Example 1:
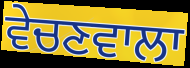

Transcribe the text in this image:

ਵੇਚਣਵਾਲਾ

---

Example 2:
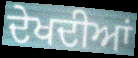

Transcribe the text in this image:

ਦੇਖਦੀਆਂ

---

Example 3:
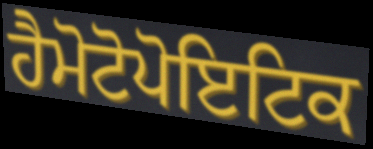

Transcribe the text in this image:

ਹੈਮੋਟੋਪੋਇਟਿਕ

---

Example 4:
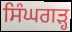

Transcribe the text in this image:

ਸਿੰਘਗੜ੍ਹ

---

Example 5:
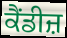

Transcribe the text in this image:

ਕੈਂਡੀਜ਼